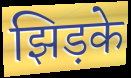
झिड़के